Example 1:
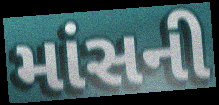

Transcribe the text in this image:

માંસની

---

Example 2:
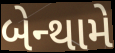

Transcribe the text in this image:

બેન્થામે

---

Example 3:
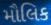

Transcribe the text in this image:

મૌલિક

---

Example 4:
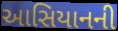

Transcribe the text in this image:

આસિયાનની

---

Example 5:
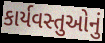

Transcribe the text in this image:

કાર્યવસ્તુઓનું